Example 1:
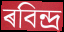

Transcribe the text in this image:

ৰবিন্দ্ৰ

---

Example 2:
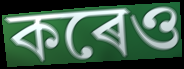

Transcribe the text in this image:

কৰেও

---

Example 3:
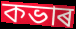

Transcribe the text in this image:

কভাৰ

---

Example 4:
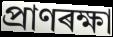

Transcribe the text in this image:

প্ৰাণৰক্ষা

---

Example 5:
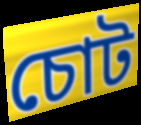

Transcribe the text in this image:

চোট